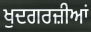
ਖੁਦਗਰਜ਼ੀਆਂ